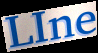
LIne